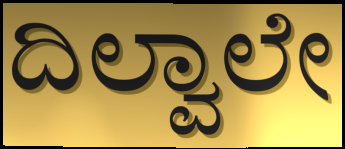
ದಿಲ್ವಾಲೇ